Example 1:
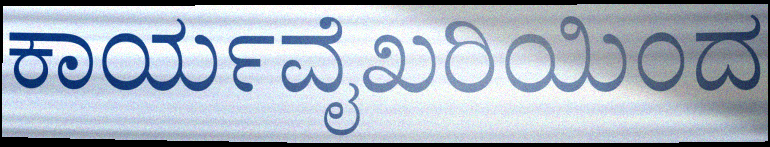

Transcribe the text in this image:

ಕಾರ್ಯವೈಖರಿಯಿಂದ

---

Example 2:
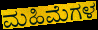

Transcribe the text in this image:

ಮಹಿಮೆಗಳ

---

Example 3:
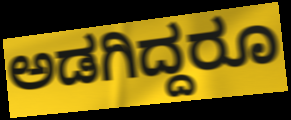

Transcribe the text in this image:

ಅಡಗಿದ್ದರೂ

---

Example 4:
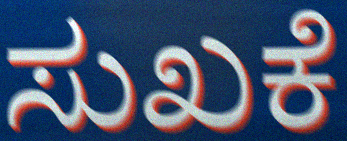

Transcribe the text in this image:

ಸುಖಕೆ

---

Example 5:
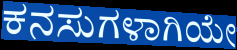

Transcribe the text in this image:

ಕನಸುಗಳಾಗಿಯೇ